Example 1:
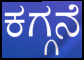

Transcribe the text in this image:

ಕಗ್ಗನೆ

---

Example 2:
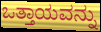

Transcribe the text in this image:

ಒತ್ತಾಯವನ್ನು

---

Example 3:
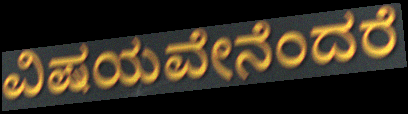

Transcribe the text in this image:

ವಿಷಯವೇನೆಂದರೆ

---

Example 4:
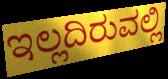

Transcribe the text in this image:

ಇಲ್ಲದಿರುವಲ್ಲಿ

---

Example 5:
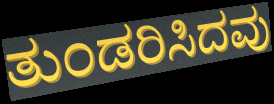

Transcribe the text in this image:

ತುಂಡರಿಸಿದವು